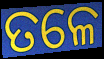
ତଳେ